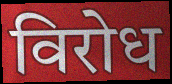
विरोध